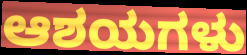
ಆಶಯಗಳು